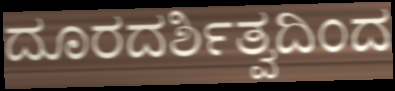
ದೂರದರ್ಶಿತ್ವದಿಂದ